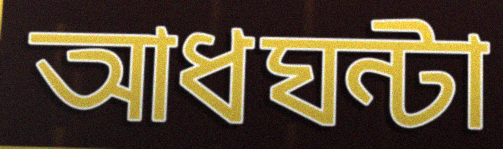
আধঘন্টা